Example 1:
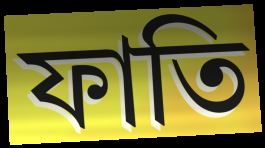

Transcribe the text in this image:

ফাতি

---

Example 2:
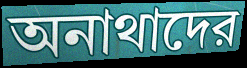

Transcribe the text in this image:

অনাথাদের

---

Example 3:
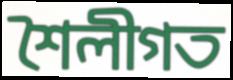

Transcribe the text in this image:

শৈলীগত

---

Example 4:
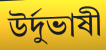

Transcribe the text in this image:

উর্দুভাষী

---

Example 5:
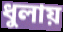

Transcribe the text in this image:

ধুলায়